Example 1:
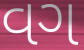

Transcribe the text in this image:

વગ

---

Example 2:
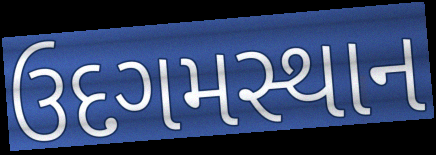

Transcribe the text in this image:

ઉદગમસ્થાન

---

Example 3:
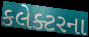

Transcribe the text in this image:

કલેક્ટરના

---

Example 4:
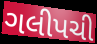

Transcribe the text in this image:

ગલીપચી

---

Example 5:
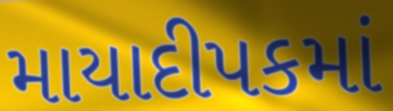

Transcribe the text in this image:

માયાદીપકમાં